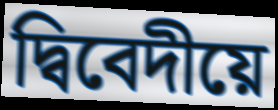
দ্বিবেদীয়ে